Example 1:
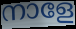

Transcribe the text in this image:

നാളേ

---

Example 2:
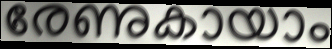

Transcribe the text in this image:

രേണുകായാം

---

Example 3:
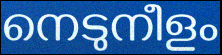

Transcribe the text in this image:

നെടുനീളം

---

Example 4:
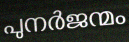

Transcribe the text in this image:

പുനർജന്മം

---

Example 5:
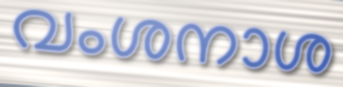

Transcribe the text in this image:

വംശനാശ